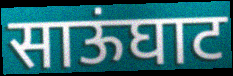
साऊंघाट